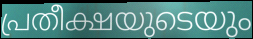
പ്രതീക്ഷയുടെയും